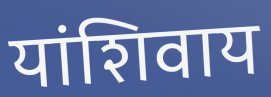
यांशिवाय